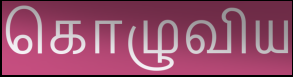
கொழுவிய